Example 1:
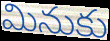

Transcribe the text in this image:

మినుకు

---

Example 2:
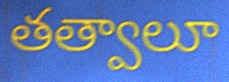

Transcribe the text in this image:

తత్వాలూ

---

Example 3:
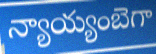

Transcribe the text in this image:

న్యాయ్యంబెగా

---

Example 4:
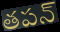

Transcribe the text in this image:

తపన్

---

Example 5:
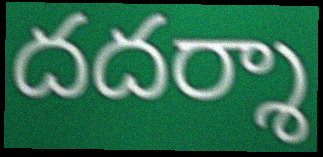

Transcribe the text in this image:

దదర్శా